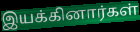
இயக்கினார்கள்